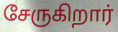
சேருகிறார்